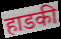
हाडकी